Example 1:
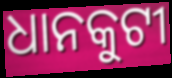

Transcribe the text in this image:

ଧାନକୁଟୀ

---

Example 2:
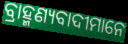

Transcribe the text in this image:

ବ୍ରାହ୍ମଣ୍ୟବାଦୀମାନେ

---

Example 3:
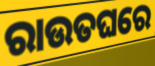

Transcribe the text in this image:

ରାଉତଘରେ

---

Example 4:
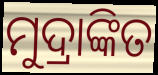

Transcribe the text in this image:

ମୁଦ୍ରାଙ୍କିତ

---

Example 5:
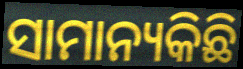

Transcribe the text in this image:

ସାମାନ୍ୟକିଛି